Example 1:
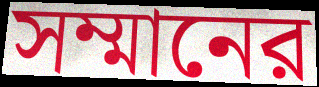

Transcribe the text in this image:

সম্মানের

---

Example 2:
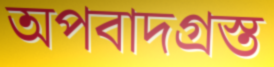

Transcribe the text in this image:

অপবাদগ্রস্ত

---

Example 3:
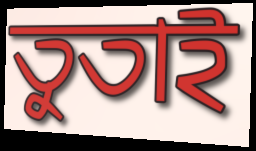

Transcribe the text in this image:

তুতাই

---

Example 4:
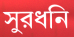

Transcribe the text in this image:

সুরধনি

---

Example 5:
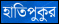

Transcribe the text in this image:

হাতিপুকুর